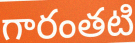
గారంతటి